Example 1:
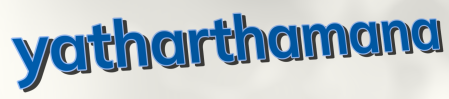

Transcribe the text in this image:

yatharthamana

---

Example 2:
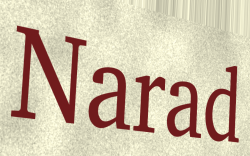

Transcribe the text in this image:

Narad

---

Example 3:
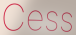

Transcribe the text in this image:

Cess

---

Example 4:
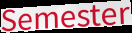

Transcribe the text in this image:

Semester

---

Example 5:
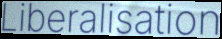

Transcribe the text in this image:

Liberalisation